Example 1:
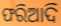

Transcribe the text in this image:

ଫରିଆଦି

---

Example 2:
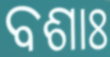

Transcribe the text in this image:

ବଶାଃ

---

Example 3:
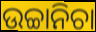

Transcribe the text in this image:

ଉଚ୍ଚାନିଚା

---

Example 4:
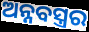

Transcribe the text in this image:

ଅନ୍ନବସ୍ତ୍ରର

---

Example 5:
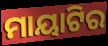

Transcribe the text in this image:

ମାୟାଟିର